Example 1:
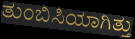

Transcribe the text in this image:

ತುಂಬಿಸಿಯಾಗಿತ್ತು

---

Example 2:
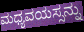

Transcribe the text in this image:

ಮಧ್ಯವಯಸ್ಸನ್ನು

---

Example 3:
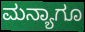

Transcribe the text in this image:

ಮನ್ಯಾಗೂ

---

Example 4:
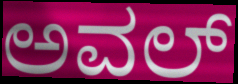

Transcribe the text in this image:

ಅವಲ್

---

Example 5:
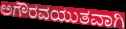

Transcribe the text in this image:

ಅಗೌರವಯುತವಾಗಿ